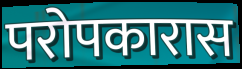
परोपकारास